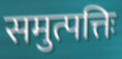
समुत्पत्तिः